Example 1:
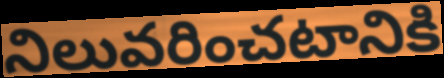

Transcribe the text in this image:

నిలువరించటానికి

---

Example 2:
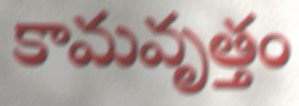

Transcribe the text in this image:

కామవృత్తం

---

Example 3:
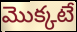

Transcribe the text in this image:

మొక్కటే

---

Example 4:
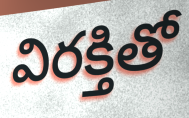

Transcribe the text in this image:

విరక్తితో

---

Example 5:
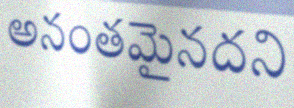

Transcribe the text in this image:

అనంతమైనదని